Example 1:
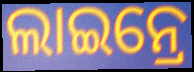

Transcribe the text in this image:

ଲାଇନ୍ରେ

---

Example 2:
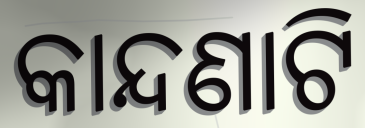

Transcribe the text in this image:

କାନ୍ଦଣାଟି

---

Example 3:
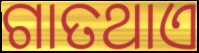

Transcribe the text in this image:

ଗାତଥାଏ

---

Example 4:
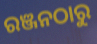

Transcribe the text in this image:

ରଞ୍ଜନଠାରୁ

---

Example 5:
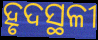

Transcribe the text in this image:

ହୃଦସ୍ଥଳୀ